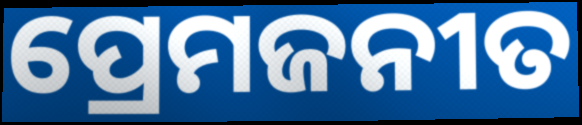
ପ୍ରେମଜନୀତ